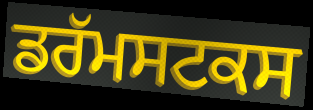
ਡਰੱਮਸਟਕਸ